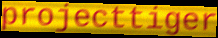
projecttiger